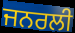
ਜਨਰਲੀ